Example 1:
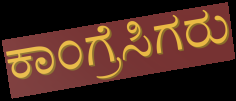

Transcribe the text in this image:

ಕಾಂಗ್ರೆಸಿಗರು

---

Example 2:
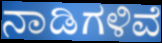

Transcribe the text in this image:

ನಾಡಿಗಳಿವೆ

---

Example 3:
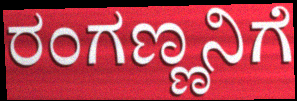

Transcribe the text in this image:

ರಂಗಣ್ಣನಿಗೆ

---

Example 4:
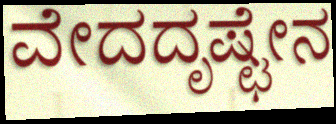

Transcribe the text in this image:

ವೇದದೃಷ್ಟೇನ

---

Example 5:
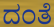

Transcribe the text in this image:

ದಂತೆ